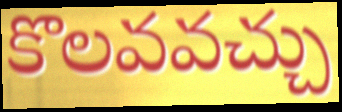
కొలవవచ్చు